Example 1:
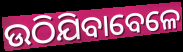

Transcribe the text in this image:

ଉଠିଯିବାବେଳେ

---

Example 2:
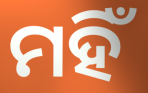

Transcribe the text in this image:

ମହିଁ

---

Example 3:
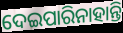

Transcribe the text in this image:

ଦେଇପାରିନାହାନ୍ତି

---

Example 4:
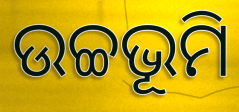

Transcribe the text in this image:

ଉଚ୍ଚଭୂମି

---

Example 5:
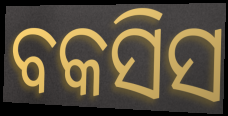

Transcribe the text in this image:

ବକସିସ